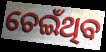
ଚେଇଁଥିବ